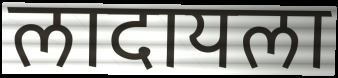
लादायला